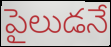
పైలుడనే